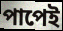
পাপেই